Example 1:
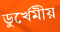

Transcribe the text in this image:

ডুর্খেমীয়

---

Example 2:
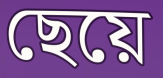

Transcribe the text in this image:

ছেয়ে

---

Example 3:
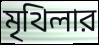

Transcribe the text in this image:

মৃথিলার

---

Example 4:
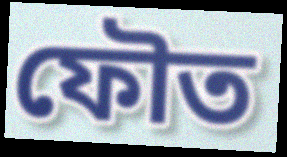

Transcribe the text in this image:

ফৌত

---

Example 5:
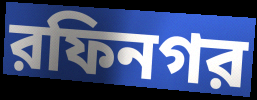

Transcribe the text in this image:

রফিনগর